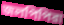
জলপিপিরা